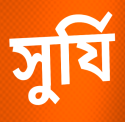
সুর্যি